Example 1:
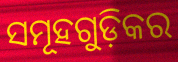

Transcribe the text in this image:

ସମୂହଗୁଡ଼ିକର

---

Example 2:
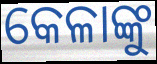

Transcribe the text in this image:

କେଳାଙ୍କୁ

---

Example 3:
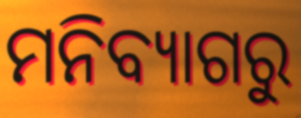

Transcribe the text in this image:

ମନିବ୍ୟାଗରୁ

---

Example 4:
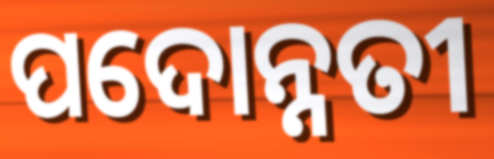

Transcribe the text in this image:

ପଦୋନ୍ନତୀ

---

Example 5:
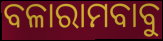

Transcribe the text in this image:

ବଳାରାମବାବୁ